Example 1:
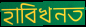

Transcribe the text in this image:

হাবিখনত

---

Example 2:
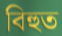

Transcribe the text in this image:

বিহুত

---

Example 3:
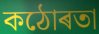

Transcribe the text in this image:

কঠোৰতা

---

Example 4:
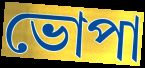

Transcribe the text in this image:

ভোপা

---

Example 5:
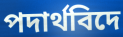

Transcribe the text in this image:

পদাৰ্থবিদে